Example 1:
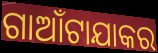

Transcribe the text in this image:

ଗାଆଁଟାଯାକର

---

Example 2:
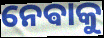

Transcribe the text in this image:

ନେଵାକୁ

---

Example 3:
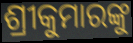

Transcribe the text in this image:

ଶ୍ରୀକୁମାରଙ୍କୁ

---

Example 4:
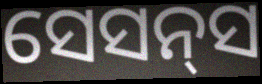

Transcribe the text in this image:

ସେସନ୍‌ସ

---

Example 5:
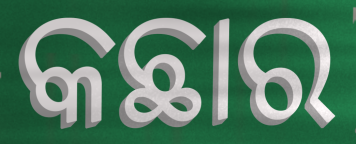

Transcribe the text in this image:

କଛାର